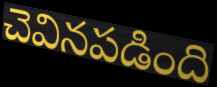
చెవినపడింది